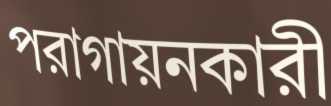
পরাগায়নকারী